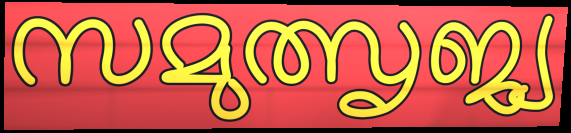
സമുത്സൃജ്യ